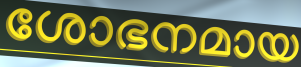
ശോഭനമായ